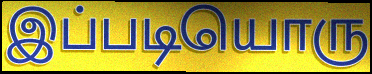
இப்படியொரு